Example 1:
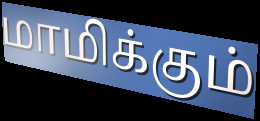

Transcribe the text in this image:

மாமிக்கும்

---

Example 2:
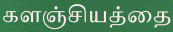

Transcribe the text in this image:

களஞ்சியத்தை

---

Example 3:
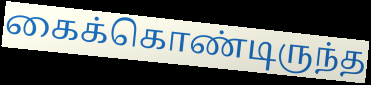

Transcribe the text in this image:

கைக்கொண்டிருந்த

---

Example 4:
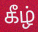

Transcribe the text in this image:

கீழ்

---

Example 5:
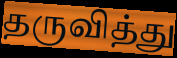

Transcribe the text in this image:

தருவித்து